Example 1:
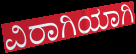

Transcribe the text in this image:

ವಿರಾಗಿಯಾಗಿ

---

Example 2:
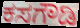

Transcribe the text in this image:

ಕಸಗೌಡಿ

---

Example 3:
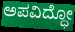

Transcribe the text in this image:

ಅಪವಿದ್ಧೋ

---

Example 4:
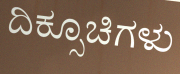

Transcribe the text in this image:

ದಿಕ್ಸೂಚಿಗಳು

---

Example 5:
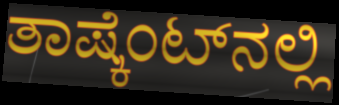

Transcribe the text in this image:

ತಾಷ್ಕೆಂಟ್‌ನಲ್ಲಿ